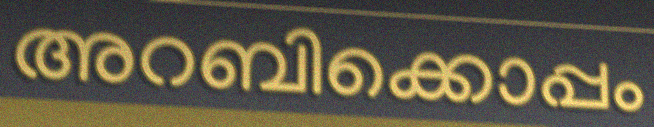
അറബിക്കൊപ്പം